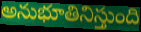
అనుభూతినిస్తుంది